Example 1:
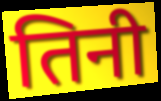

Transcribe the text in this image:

तिनी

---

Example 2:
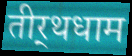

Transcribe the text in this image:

तीर्थधाम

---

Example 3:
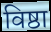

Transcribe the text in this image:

विष्ठा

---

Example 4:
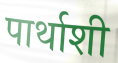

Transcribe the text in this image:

पार्थाशी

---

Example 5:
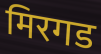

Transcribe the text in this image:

मिरगड